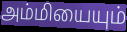
அம்மியையும்